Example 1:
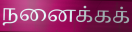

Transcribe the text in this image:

நனைக்கக்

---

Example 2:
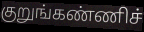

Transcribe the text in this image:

குறுங்கண்ணிச்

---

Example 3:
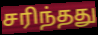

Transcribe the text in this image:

சரிந்தது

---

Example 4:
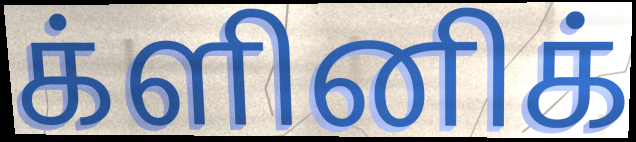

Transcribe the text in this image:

க்ளினிக்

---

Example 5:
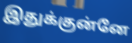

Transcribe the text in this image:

இதுக்குன்னே